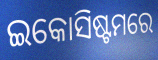
ଇକୋସିଷ୍ଟମରେ